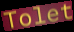
Tolet